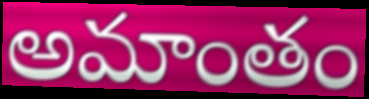
అమాంతం